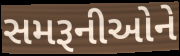
સમરૂનીઓને